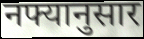
नफ्यानुसार